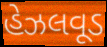
હેઝલવૂડ